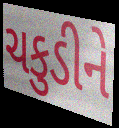
ચકુડીને